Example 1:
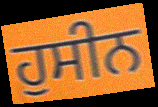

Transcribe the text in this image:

ਹੁਸੀਨ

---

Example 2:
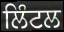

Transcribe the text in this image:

ਲਿੰਟਲ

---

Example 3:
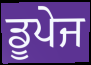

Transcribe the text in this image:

ਡੂਪੇਜ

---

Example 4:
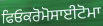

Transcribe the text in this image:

ਫਿਓਕਰੋਮੋਸਾਈਟੋਮਾ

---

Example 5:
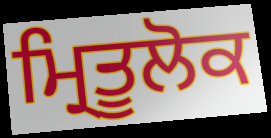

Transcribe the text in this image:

ਮ੍ਰਿਤੂਲੋਕ